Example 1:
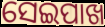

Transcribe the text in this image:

ସେଇପାଖ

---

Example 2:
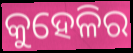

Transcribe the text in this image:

କୁହେଳିର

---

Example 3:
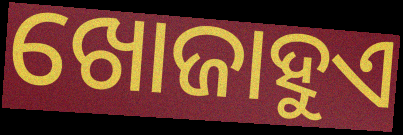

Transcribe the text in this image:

ଖୋଜାହୁଏ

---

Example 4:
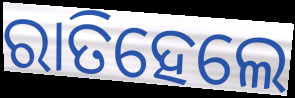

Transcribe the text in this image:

ରାତିହେଲେ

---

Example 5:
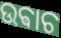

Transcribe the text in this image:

ଉଵାଚ